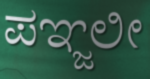
ಪಞ್ಜಲೀ